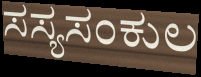
ಸಸ್ಯಸಂಕುಲ